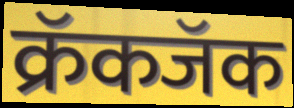
क्रॅकजॅक